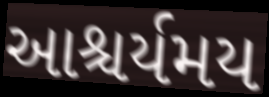
આશ્ચર્યમય